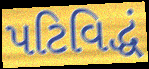
પટિવિદ્ધં